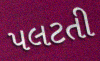
પલટતી